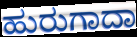
ಹುರುಗಾದಾ